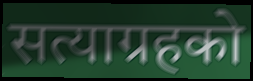
सत्याग्रहको